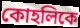
কোহলিকে